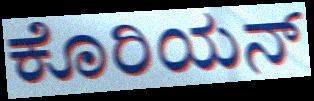
ಕೊರಿಯನ್